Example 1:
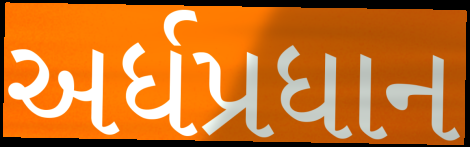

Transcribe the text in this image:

અર્ધપ્રધાન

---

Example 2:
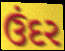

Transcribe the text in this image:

ઉંદર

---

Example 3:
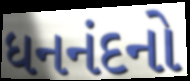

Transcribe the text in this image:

ધનનંદનો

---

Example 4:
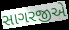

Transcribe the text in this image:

સાગરજીએ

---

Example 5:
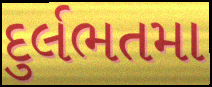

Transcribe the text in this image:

દુર્લભતમા